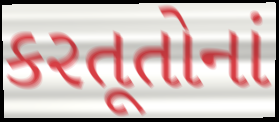
કરતૂતોનાં